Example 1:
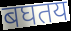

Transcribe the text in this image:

बघतय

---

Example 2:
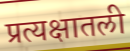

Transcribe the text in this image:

प्रत्यक्षातली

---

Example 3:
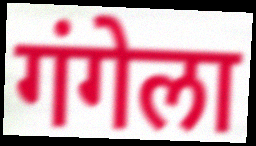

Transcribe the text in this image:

गंगेला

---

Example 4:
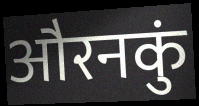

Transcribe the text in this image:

औरनकुं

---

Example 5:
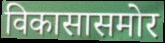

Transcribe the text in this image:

विकासासमोर